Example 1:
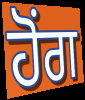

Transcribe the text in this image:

ਹੋੰਗ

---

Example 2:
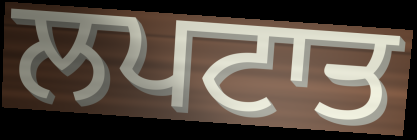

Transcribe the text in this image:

ਲਪਟਾਤ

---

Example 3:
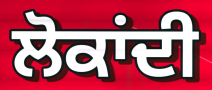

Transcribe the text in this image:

ਲੋਕਾਂਦੀ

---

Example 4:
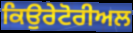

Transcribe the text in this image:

ਕਿਉਰੇਟੋਰੀਅਲ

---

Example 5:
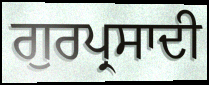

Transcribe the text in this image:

ਗੁਰਪ੍ਰਸਾਦੀ